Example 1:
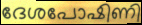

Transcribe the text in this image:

ദേശപോഷിണി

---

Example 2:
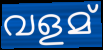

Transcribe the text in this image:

വളമ്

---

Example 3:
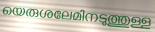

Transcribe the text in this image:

യെരുശലേമിനടുത്തുള്ള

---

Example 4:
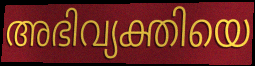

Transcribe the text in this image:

അഭിവ്യക്തിയെ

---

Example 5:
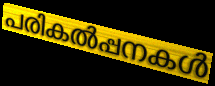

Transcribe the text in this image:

പരികൽപ്പനകൾ